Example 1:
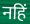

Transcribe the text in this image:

नहिं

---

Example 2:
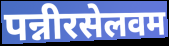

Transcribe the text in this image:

पन्नीरसेलवम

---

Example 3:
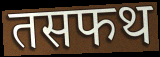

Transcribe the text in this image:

तसफथ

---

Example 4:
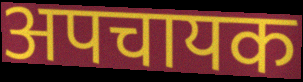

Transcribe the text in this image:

अपचायक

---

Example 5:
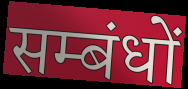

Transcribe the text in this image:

सम्बंधों